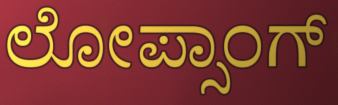
ಲೋಪ್ಸಾಂಗ್